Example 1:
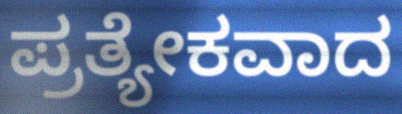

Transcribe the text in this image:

ಪ್ರತ್ಯೇಕವಾದ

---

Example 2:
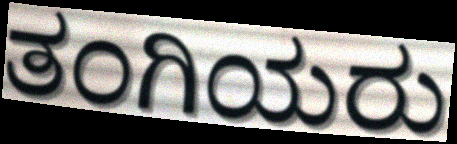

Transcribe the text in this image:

ತಂಗಿಯರು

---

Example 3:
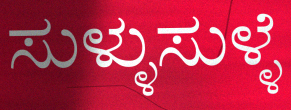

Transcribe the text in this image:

ಸುಳ್ಳುಸುಳ್ಳೆ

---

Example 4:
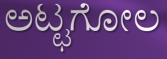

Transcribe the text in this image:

ಅಟ್ಟಗೋಲ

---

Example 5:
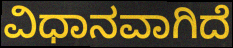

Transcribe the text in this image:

ವಿಧಾನವಾಗಿದೆ